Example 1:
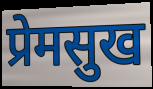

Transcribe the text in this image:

प्रेमसुख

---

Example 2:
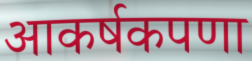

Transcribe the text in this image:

आकर्षकपणा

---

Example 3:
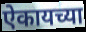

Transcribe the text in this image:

ऐकायच्या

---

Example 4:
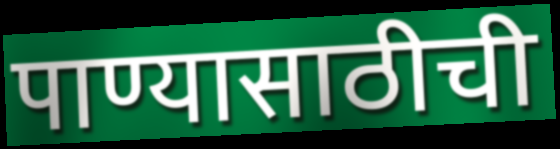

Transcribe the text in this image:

पाण्यासाठीची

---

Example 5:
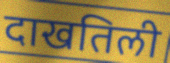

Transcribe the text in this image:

दाखतिली